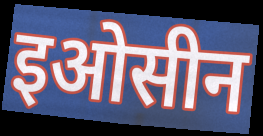
इओसीन